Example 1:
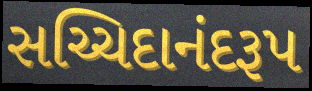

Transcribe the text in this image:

સચ્ચિદાનંદરૂપ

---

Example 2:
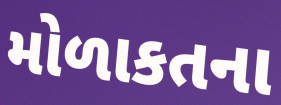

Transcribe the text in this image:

મોળાકતના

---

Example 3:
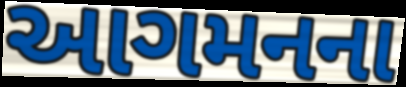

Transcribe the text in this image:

આગમનના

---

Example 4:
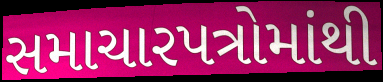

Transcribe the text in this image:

સમાચારપત્રોમાંથી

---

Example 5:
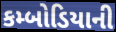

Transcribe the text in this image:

કમ્બોડિયાની